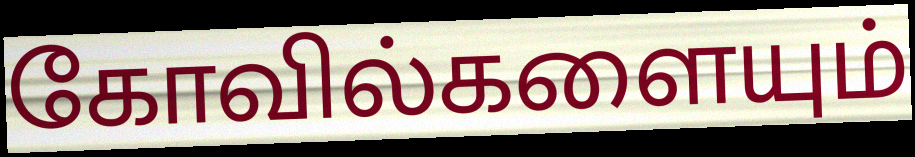
கோவில்களையும்